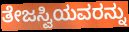
ತೇಜಸ್ವಿಯವರನ್ನು